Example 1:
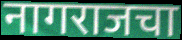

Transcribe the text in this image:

नागराजचा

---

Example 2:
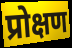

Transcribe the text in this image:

प्रोक्षण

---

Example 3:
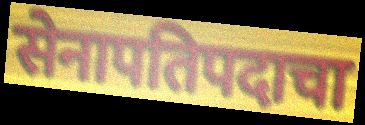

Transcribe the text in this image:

सेनापतिपदाचा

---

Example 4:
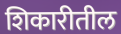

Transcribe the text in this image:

शिकारीतील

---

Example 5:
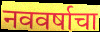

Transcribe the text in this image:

नववर्षाचा